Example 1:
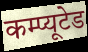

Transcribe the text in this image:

कम्प्यूटेड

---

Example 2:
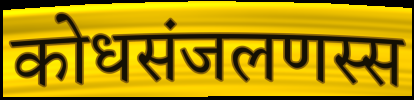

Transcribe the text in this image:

कोधसंजलणस्स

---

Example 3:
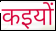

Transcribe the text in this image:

कइयों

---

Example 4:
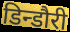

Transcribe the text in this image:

डिन्डौरी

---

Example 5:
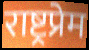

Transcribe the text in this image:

राष्ट्रप्रेम